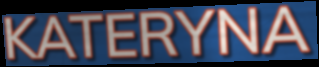
KATERYNA